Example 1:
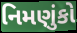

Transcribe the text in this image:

નિમણુંકો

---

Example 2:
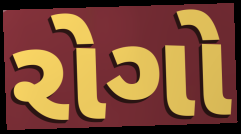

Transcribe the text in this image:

રોગો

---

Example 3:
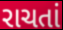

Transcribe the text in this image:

રાચતાં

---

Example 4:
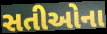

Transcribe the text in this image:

સતીઓના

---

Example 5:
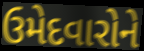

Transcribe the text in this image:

ઉમેદવારોને